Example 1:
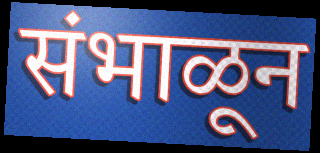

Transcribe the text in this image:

संभाळून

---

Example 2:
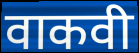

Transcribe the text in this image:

वाकवी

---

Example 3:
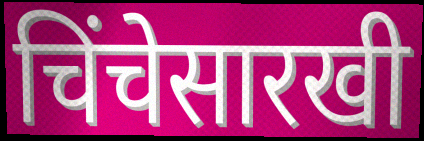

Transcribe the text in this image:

चिंचेसारखी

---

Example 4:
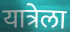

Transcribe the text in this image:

यात्रेला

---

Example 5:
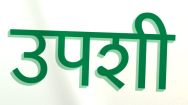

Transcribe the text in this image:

उपशी